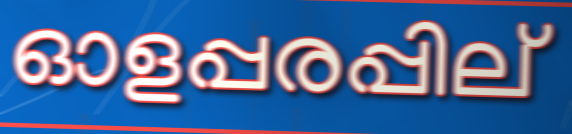
ഓളപ്പരപ്പില്